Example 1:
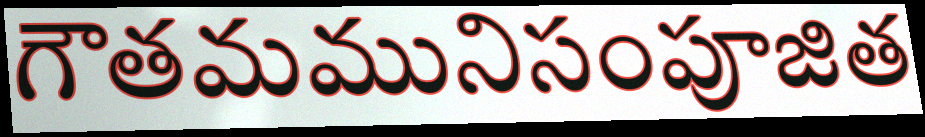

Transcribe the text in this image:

గౌతమమునిసంపూజిత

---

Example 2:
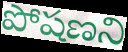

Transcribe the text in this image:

పోషణని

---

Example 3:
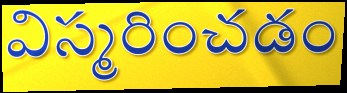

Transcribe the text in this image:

విస్మరించడం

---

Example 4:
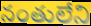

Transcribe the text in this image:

నంతులేని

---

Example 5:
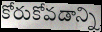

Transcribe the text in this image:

కోరుకోవడాన్ని